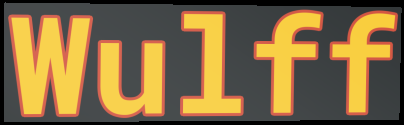
Wulff